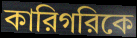
কারিগরিকে